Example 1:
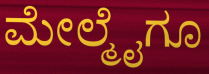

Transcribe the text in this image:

ಮೇಲ್ಮೈಗೂ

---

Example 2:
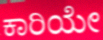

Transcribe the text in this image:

ಕಾರಿಯೇ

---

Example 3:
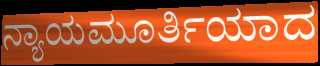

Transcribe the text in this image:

ನ್ಯಾಯಮೂರ್ತಿಯಾದ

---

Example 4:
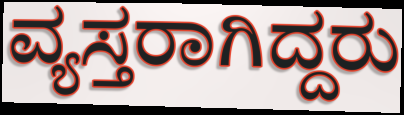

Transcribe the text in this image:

ವ್ಯಸ್ತರಾಗಿದ್ದರು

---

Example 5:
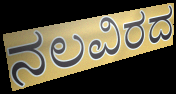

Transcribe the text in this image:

ನಲವಿರದ